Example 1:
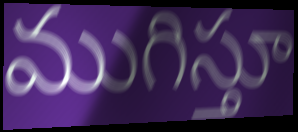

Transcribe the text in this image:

ముగిస్తూ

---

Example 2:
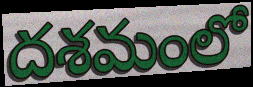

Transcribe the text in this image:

దశమంలో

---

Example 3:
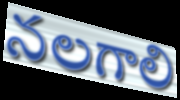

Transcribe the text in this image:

నలగాలి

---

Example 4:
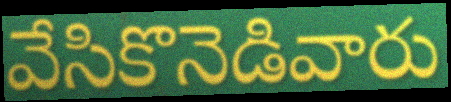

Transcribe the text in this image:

వేసికొనెడివారు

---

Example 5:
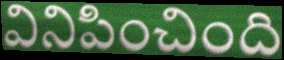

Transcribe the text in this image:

వినిపించింది